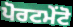
ਪੋਰਟਮੇਂਟੋ